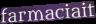
farmaciait